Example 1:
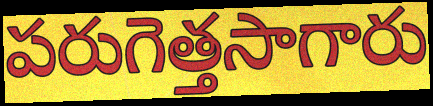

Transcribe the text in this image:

పరుగెత్తసాగారు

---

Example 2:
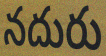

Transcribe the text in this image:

నదురు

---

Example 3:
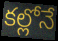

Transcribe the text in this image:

కల్లోనే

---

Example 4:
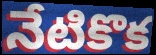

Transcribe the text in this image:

నేటికొక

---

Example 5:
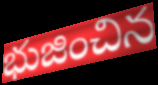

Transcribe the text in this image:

భుజించిన